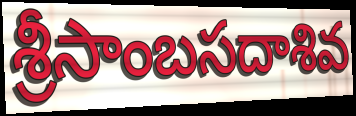
శ్రీసాంబసదాశివ